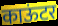
काऊंटर